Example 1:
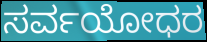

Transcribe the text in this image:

ಸರ್ವಯೋಧರ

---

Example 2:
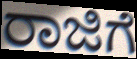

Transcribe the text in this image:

ರಾಜಿಗೆ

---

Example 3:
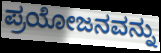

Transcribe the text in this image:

ಪ್ರಯೋಜನವನ್ನು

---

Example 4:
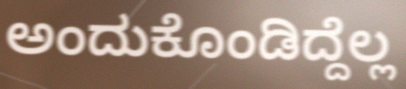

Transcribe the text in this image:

ಅಂದುಕೊಂಡಿದ್ದೆಲ್ಲ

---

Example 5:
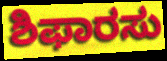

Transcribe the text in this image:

ಶಿಫಾರಸು